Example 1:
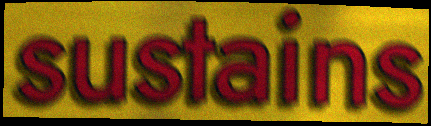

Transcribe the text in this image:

sustains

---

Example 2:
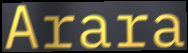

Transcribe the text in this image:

Arara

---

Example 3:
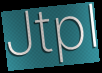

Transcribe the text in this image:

Jtpl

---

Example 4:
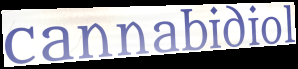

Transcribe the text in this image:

cannabidiol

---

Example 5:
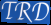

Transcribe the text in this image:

TRD